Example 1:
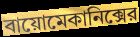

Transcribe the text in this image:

বায়োমেকানিক্সের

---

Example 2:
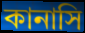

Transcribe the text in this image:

কানাসি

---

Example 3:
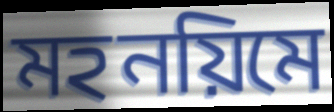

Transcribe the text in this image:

মহনয়িমে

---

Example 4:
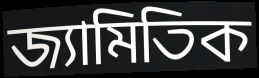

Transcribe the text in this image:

জ্যামিতিক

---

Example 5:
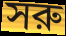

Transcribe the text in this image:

সরু